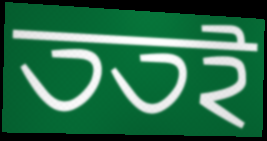
ততই